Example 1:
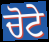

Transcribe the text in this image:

ਚੋਟੇ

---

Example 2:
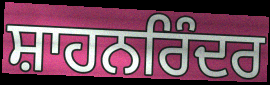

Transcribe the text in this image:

ਸ਼ਾਹਨਰਿੰਦਰ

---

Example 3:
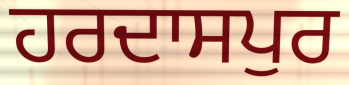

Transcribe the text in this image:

ਹਰਦਾਸਪੁਰ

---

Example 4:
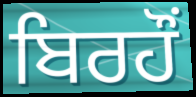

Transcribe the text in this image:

ਬਿਰਹੌਂ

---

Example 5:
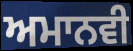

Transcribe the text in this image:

ਅਮਾਨਵੀ